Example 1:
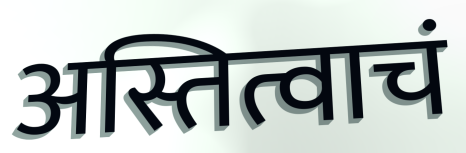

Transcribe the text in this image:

अस्तित्वाचं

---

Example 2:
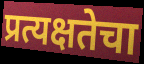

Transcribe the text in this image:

प्रत्यक्षतेचा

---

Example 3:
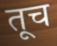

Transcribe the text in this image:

तूच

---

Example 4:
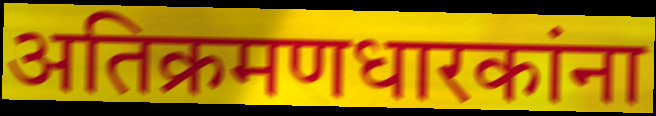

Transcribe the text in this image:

अतिक्रमणधारकांना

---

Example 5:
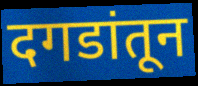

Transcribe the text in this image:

दगडांतून